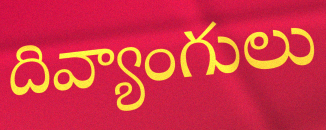
దివ్యాంగులు